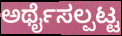
ಅರ್ಥೈಸಲ್ಪಟ್ಟ